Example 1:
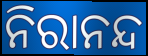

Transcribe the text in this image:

ନିରାନନ୍ଦ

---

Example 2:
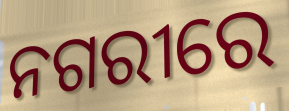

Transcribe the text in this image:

ନଗରୀରେ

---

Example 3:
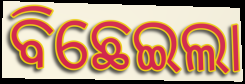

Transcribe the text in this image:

ବିଛେଇଲା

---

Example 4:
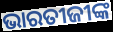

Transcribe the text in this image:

ଭାରତୀଜୀଙ୍କ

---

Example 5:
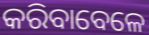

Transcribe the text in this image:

କରିବାବେଳେ